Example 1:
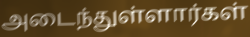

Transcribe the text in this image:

அடைந்துள்ளார்கள்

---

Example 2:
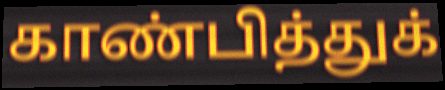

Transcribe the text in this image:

காண்பித்துக்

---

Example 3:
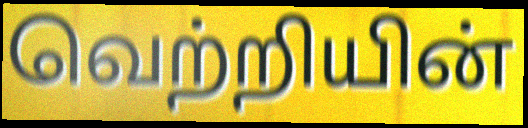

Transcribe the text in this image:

வெற்றியின்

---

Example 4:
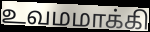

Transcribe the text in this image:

உவமமாக்கி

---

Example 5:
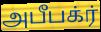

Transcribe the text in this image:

அபீபக்ர்